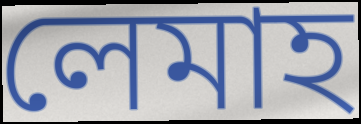
লেমাহ